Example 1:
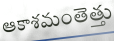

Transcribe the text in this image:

ఆకాశమంతెత్తు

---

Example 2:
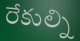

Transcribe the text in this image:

రేకుల్ని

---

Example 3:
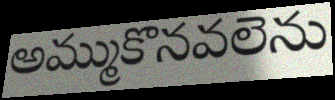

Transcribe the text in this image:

అమ్ముకొనవలెను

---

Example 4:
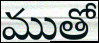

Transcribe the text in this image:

ముతో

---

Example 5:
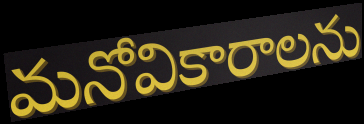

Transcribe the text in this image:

మనోవికారాలను